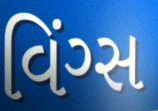
વિંગ્સ